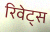
रिवेट्स